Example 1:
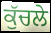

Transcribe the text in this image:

ਕੁੱਚਲੇ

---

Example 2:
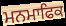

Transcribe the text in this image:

ਮਨਮਾਫਿਕ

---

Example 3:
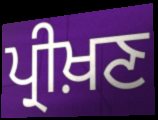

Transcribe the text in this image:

ਪ੍ਰੀਖ਼ਣ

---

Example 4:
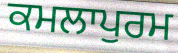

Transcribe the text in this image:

ਕਮਲਾਪੁਰਮ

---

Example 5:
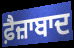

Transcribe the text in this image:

ਫ਼ੈਜ਼ਾਬਾਦ